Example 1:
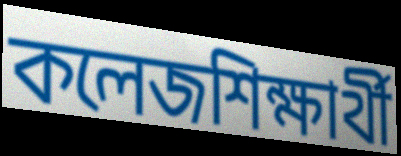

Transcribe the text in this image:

কলেজশিক্ষার্থী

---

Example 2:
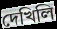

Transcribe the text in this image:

দেখিলি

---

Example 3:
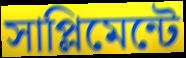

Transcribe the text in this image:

সাপ্লিমেন্টে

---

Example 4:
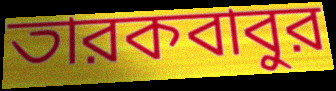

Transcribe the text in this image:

তারকবাবুর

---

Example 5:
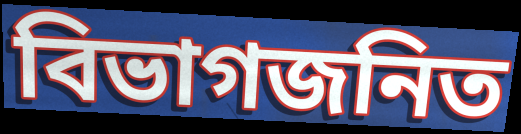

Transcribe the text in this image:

বিভাগজনিত